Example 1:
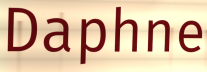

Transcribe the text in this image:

Daphne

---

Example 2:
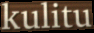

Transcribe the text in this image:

kulitu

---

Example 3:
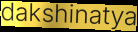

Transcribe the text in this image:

dakshinatya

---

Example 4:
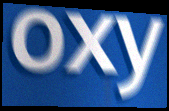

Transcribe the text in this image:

oxy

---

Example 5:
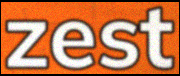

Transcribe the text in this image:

zest